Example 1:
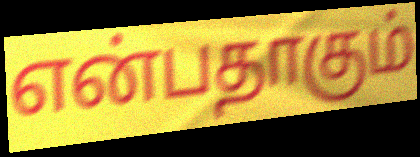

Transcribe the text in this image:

என்பதாகும்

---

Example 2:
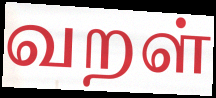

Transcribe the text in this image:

வறள்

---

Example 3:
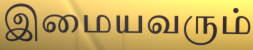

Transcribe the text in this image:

இமையவரும்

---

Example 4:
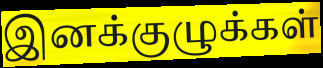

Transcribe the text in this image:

இனக்குழுக்கள்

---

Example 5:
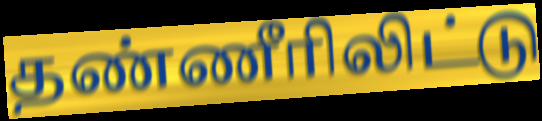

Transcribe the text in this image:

தண்ணீரிலிட்டு